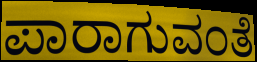
ಪಾರಾಗುವಂತೆ